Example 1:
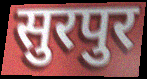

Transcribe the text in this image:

सुरपुर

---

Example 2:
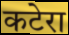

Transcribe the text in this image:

कटेरा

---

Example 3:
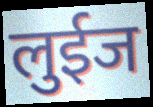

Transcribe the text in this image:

लुईज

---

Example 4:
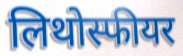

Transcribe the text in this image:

लिथोस्फीयर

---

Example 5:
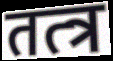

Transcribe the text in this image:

तत्त्र